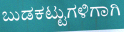
ಬುಡಕಟ್ಟುಗಳಿಗಾಗಿ